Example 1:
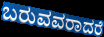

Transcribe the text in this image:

ಬರುವವರಾದರೆ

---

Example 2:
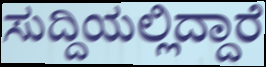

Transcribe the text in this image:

ಸುದ್ದಿಯಲ್ಲಿದ್ದಾರೆ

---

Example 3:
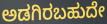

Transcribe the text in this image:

ಅಡಗಿರಬಹುದೇ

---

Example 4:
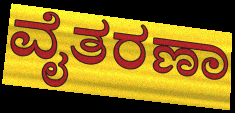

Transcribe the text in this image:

ವೈತರಣಾ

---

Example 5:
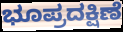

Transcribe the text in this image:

ಭೂಪ್ರದಕ್ಷಿಣೆ